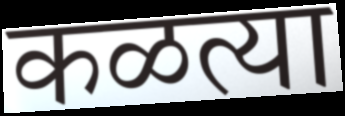
कळत्या